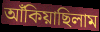
আঁকিয়াছিলাম